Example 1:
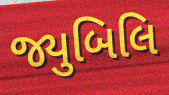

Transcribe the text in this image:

જ્યુબિલિ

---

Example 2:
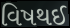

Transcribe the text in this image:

વિષથઈ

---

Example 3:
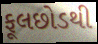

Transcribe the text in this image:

ફૂલછોડથી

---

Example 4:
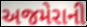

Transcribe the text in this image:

અજમેરાની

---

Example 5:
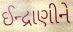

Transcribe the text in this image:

ઈન્દ્રાણીને